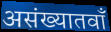
असंख्यातवाँ